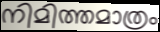
നിമിത്തമാത്രം